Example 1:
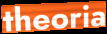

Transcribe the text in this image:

theoria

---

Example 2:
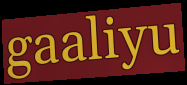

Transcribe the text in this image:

gaaliyu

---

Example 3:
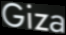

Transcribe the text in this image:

Giza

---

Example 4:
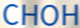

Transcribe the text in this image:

CHOH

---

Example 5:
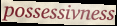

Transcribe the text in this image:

possessivness